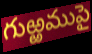
గుఱ్ఱముపై